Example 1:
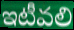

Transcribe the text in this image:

ఇటీవలి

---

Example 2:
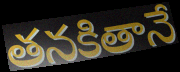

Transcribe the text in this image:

తనకితానే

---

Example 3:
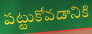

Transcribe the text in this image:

పట్టుకోవడానికి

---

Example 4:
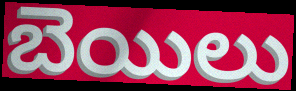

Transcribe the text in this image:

బెయిలు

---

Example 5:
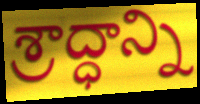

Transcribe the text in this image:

శ్రాద్ధాన్ని